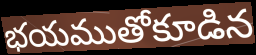
భయముతోకూడిన